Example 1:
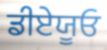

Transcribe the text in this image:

ਡੀਏਯੂਓ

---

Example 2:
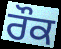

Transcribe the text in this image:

ਰੌਕ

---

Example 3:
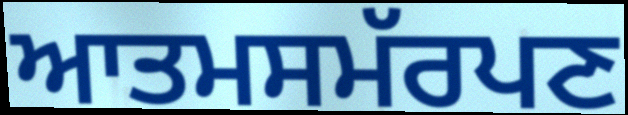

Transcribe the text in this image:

ਆਤਮਸਮੱਰਪਣ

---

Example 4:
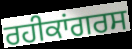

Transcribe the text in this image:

ਰਹੀਕਾਂਗਰਸ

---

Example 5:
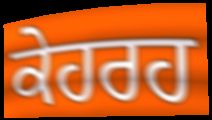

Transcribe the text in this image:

ਕੇਹਰਹ